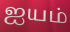
ஐயம்